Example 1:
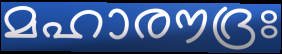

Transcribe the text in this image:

മഹാരൗദ്രഃ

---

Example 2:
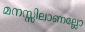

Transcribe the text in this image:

മനസ്സിലാണല്ലോ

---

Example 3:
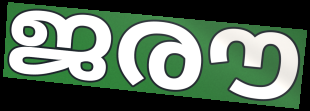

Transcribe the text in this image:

ജരൗ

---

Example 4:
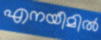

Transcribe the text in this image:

എനയീമിൽ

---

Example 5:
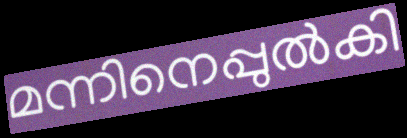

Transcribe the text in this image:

മന്നിനെപ്പുൽകി